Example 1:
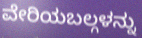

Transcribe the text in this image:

ವೇರಿಯಬಲ್ಗಳನ್ನು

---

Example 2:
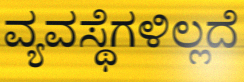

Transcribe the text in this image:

ವ್ಯವಸ್ಥೆಗಳಿಲ್ಲದೆ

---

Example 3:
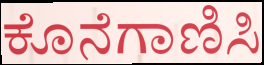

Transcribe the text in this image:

ಕೊನೆಗಾಣಿಸಿ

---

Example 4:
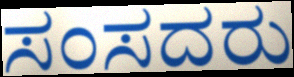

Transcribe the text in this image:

ಸಂಸದರು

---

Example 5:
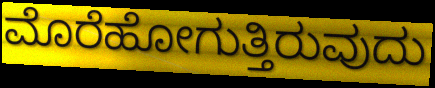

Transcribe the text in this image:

ಮೊರೆಹೋಗುತ್ತಿರುವುದು